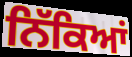
ਨਿੱਕਿਆਂ